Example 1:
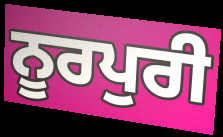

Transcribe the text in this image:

ਨੂਰਪੁਰੀ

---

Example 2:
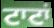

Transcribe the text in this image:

ਟਾਟਾਂ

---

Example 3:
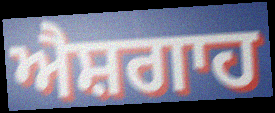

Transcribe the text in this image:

ਐਸ਼ਗਾਹ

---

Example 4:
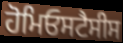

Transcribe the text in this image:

ਹੋਮਿਓਸਟੈਸੀਸ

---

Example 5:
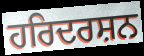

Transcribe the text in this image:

ਹਰਿਦਰਸ਼ਨ